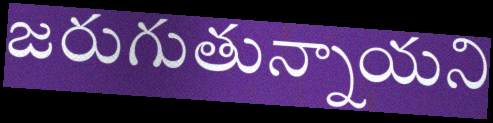
జరుగుతున్నాయని